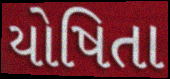
યોષિતા